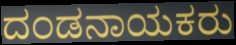
ದಂಡನಾಯಕರು